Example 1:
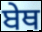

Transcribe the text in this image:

ਬੇਥ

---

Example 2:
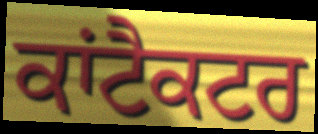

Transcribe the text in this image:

ਕਾਂਟੈਕਟਰ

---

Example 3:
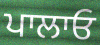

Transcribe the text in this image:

ਪਾਲਾਓ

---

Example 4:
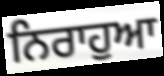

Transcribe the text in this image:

ਨਿਰਾਹੁਆ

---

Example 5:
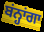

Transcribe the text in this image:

ਬਂਨ੍ਹਾਂਗਾ